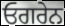
ਓਗਰੇਨ